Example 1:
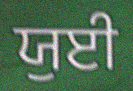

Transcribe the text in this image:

ਯੁਈ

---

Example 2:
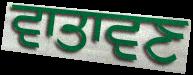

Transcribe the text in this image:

ਵਾਤਾਵਣ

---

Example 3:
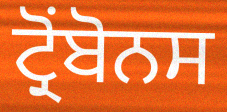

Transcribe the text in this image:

ਟ੍ਰੋਂਬੋਨਸ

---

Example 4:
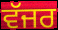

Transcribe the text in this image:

ਵੱਜਰ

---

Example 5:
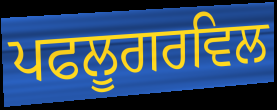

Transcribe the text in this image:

ਪਫਲੂਗਰਵਿਲ